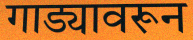
गाड्यावरून